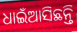
ଧାଇଁଆସିଛନ୍ତି